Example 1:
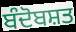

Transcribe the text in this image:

ਬੰਦੋਬਸ਼ਤ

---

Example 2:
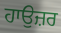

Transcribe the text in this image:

ਹਾਉਜ਼ਰ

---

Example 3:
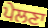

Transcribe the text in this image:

ਪੇਲਣਾ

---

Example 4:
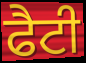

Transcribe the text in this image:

ਫੈਟੀ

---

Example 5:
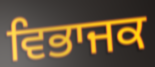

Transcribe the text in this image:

ਵਿਭਾਜਕ